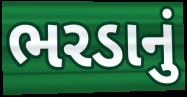
ભરડાનું